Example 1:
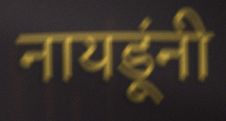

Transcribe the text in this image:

नायडूंनी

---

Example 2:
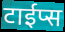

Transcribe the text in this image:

टाईप्स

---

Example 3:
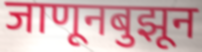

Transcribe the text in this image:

जाणूनबुझून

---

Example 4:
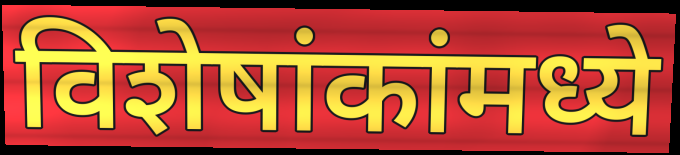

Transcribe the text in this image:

विशेषांकांमध्ये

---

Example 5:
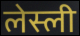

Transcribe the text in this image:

लेस्ली